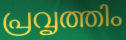
പ്രവൃത്തിം